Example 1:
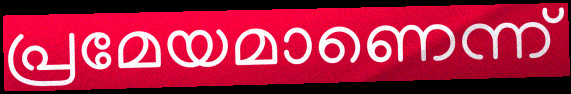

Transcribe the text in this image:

പ്രമേയമാണെന്ന്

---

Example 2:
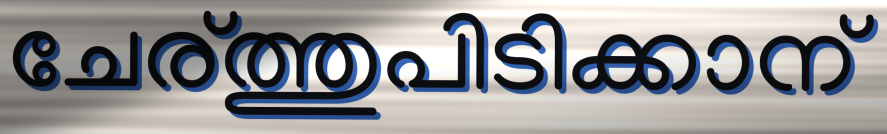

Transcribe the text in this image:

ചേര്ത്തുപിടിക്കാന്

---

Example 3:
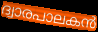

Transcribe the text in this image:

ദ്വാരപാലകൻ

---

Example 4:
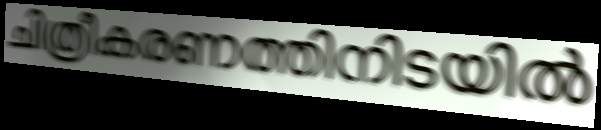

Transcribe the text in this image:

ചിത്രീകരണത്തിനിടയിൽ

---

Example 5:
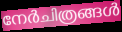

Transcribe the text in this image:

നേർചിത്രങ്ങൾ